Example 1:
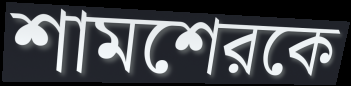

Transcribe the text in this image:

শামশেরকে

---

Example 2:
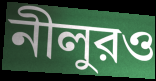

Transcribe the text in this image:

নীলুরও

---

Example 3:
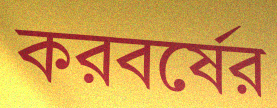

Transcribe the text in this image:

করবর্ষের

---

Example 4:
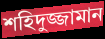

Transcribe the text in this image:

শহিদুজ্জামান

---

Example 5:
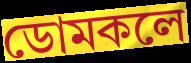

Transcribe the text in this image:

ডোমকলে